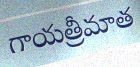
గాయత్రీమాత